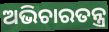
ଅଭିଚାରତନ୍ତ୍ର